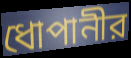
ধোপানীর